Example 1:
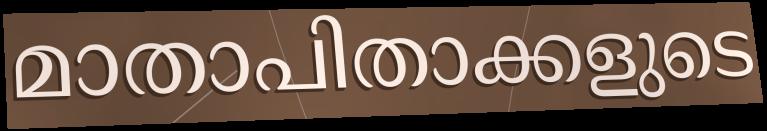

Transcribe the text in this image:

മാതാപിതാക്കളുടെ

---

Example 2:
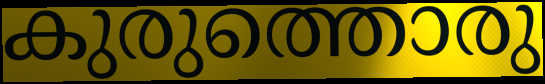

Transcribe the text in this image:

കുരുത്തൊരു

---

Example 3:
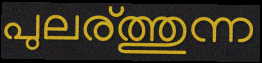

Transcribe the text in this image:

പുലര്ത്തുന്ന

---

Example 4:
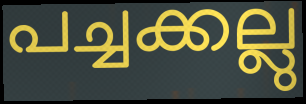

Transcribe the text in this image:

പച്ചക്കല്ലു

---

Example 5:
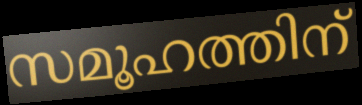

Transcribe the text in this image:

സമൂഹത്തിന്